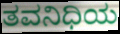
ತವನಿಧಿಯ